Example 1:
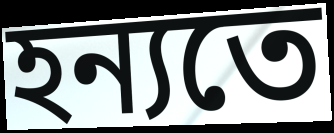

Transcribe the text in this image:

হন্যতে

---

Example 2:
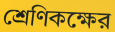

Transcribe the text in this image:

শ্রেণিকক্ষের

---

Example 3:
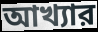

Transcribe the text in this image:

আখ্যার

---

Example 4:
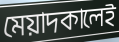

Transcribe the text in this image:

মেয়াদকালেই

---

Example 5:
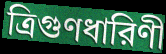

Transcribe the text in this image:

ত্রিগুণধারিণী